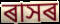
ৰাসৰ